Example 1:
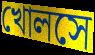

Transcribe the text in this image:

খোলসে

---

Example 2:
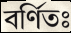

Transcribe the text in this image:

বর্ণিতঃ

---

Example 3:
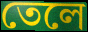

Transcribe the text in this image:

তেলে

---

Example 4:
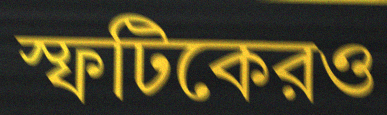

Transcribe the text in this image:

স্ফটিকেরও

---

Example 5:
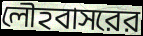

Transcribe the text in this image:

লৌহবাসরের